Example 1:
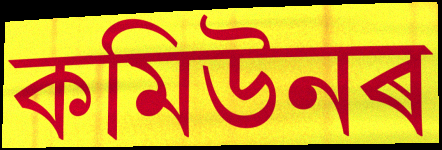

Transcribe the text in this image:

কমিউনৰ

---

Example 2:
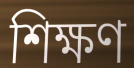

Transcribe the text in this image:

শিক্ষণ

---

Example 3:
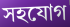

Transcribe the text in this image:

সহযোগ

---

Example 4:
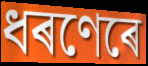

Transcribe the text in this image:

ধৰণেৰে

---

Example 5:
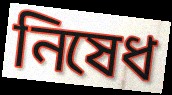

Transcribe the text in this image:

নিষেধ